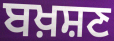
ਬਖ਼ਸ਼ਣ